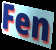
Fen